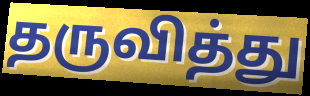
தருவித்து